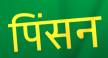
पिंसन